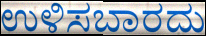
ಉಳಿಸಬಾರದು